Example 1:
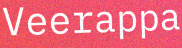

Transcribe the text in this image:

Veerappa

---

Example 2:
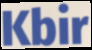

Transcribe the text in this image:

Kbir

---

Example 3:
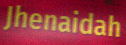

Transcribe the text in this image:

Jhenaidah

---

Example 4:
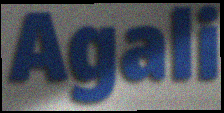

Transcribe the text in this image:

Agali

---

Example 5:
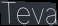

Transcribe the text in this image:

Teva